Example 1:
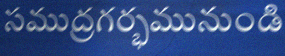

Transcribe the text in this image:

సముద్రగర్భమునుండి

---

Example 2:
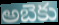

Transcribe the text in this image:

అబెకు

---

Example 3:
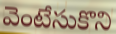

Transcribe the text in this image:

వెంటేసుకొని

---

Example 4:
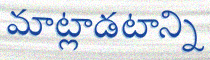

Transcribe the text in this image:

మాట్లాడటాన్ని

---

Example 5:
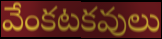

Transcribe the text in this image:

వేంకటకవులు